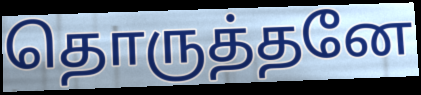
தொருத்தனே